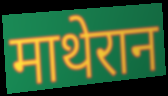
माथेरान